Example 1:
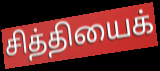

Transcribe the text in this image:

சித்தியைக்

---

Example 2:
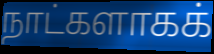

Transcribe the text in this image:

நாட்களாகக்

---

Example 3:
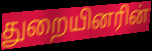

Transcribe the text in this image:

துறையினரின்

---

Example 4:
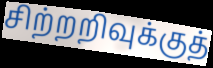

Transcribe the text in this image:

சிற்றறிவுக்குத்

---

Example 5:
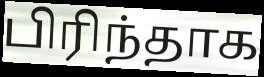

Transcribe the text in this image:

பிரிந்தாக